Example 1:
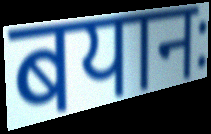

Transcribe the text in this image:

बयानः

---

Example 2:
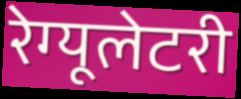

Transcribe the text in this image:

रेग्यूलेटरी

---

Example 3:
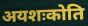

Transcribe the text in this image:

अयशःकोति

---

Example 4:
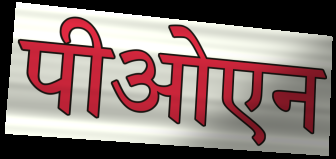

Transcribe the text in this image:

पीओएन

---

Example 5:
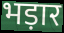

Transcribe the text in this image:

भड़ार